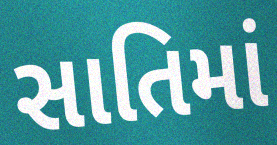
સાતિમાં